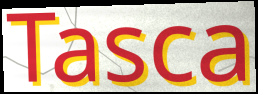
Tasca